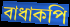
বাধাকপি